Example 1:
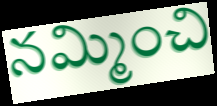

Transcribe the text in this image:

నమ్మించి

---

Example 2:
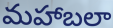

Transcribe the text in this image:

మహాబలా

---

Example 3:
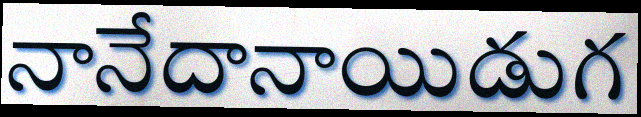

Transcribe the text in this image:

నానేదానాయిడుగ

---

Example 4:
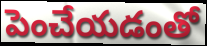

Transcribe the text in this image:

పెంచేయడంతో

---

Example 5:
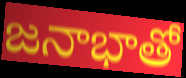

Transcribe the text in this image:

జనాభాతో